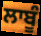
ਲਾਬੂੰ